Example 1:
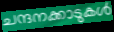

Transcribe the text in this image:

ചന്ദനക്കാടുകൾ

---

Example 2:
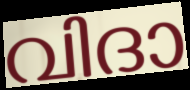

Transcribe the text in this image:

വിദാ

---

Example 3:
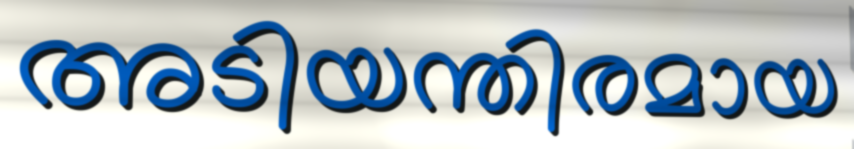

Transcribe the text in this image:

അടിയന്തിരമായ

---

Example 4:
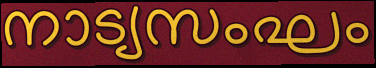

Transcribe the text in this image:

നാട്യസംഘം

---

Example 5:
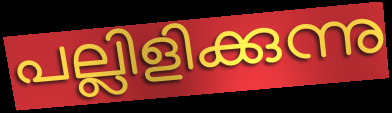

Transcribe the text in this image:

പല്ലിളിക്കുന്നു